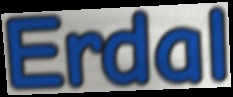
Erdal